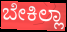
ಬೇಕಿಲ್ಲಾ